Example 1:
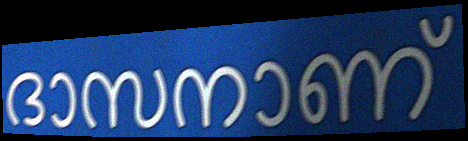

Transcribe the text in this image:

ദാസനാണ്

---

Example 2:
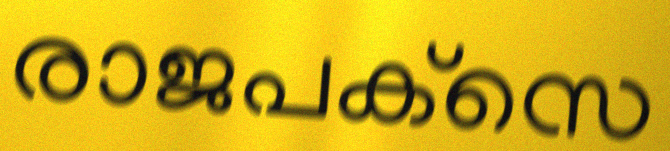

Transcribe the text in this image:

രാജപക്‌സെ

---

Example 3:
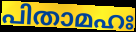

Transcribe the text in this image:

പിതാമഹഃ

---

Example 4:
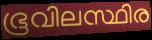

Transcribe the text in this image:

ഭൂവിലസ്ഥിര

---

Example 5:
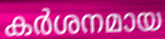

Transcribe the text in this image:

കർശനമായ